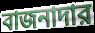
বাজনাদার